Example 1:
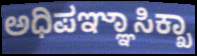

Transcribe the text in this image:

ಅಧಿಪಞ್ಞಾಸಿಕ್ಖಾ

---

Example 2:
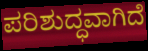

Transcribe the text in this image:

ಪರಿಶುದ್ಧವಾಗಿದೆ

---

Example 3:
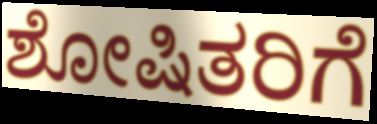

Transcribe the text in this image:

ಶೋಷಿತರಿಗೆ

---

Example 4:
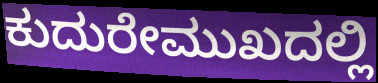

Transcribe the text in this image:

ಕುದುರೇಮುಖದಲ್ಲಿ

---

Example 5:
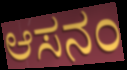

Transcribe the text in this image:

ಆಸನಂ